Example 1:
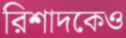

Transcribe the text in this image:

রিশাদকেও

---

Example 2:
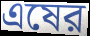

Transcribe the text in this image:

এষের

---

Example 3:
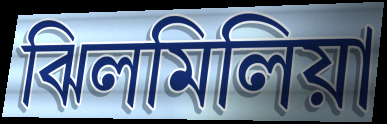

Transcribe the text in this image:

ঝিলমিলিয়া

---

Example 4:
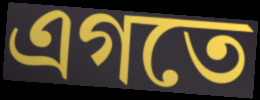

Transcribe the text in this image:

এগতে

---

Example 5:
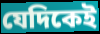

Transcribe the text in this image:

যেদিকেই